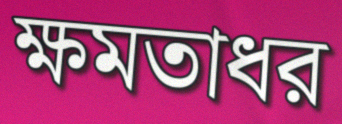
ক্ষমতাধর